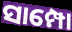
ସାମ୍ପୋ